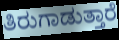
ತಿರುಗಾಡುತ್ತಾರೆ